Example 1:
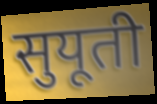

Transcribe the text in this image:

सुयूती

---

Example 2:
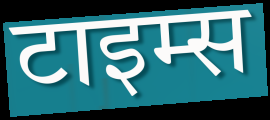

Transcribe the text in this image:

टाइम्‍स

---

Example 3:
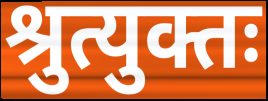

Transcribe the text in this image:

श्रुत्युक्तः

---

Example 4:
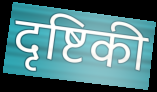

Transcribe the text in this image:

दृष्टिकी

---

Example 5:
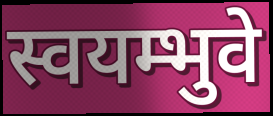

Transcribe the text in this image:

स्वयम्भुवे